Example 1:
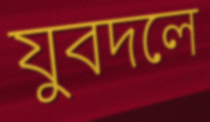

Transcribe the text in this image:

যুবদলে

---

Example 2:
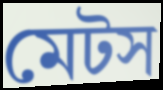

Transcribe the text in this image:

মেটস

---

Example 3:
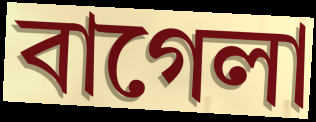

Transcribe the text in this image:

বাগেলা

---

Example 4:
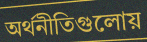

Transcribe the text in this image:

অর্থনীতিগুলোয়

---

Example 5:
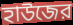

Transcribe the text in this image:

হাউজের